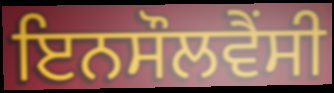
ਇਨਸੌਲਵੈਂਸੀ